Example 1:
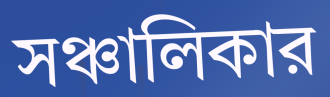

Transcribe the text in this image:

সঞ্চালিকার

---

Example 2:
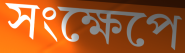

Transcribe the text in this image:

সংক্ষেপে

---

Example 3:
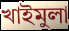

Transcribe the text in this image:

খাইমুলা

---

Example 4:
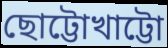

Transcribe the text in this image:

ছোট্টোখাট্টো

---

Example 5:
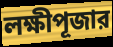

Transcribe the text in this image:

লক্ষীপূজার